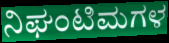
ನಿಘಂಟಿಮಗಳ